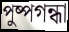
পুষ্পগন্ধা